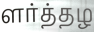
ளர்த்தழ